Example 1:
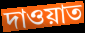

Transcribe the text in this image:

দাওয়াত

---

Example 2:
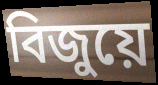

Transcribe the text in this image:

বিজুয়ে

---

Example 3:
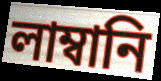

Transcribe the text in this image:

লাম্বানি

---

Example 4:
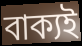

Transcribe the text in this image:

বাক্যই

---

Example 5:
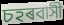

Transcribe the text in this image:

চহৰবাসী